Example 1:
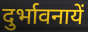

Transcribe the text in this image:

दुर्भावनायें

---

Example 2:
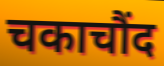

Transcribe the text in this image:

चकाचौंद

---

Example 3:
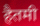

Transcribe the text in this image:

हैतमी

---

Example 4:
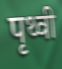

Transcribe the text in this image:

पृथ्वी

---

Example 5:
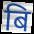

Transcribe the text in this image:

बि